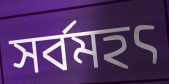
সর্বমহৎ